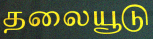
தலையூடு